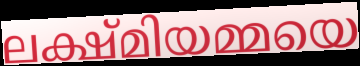
ലക്ഷ്മിയമ്മയെ